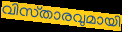
വിസ്‌താരവുമായി